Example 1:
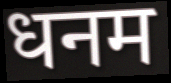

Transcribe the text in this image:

धनम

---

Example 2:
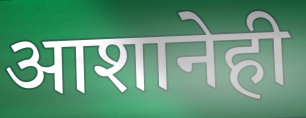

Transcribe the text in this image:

आशानेही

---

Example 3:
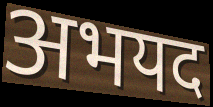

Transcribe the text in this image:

अभयद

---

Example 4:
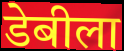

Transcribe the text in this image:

डेबीला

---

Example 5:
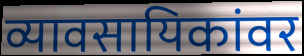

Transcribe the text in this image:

व्यावसायिकांवर